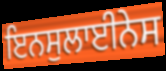
ਇਨਸੁਲਾਈਨੇਸ